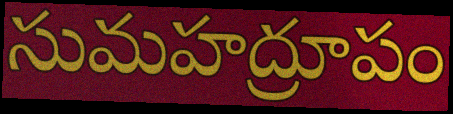
సుమహద్రూపం